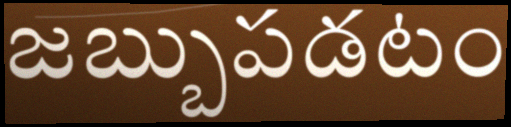
జబ్బుపడటం